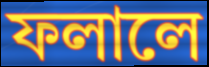
ফলালে